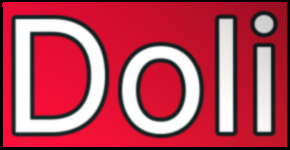
Doli